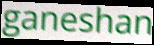
ganeshan